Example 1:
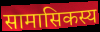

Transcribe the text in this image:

सामासिकस्य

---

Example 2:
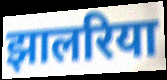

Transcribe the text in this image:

झालरिया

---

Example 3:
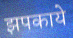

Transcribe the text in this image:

झपकाये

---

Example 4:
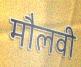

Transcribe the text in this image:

मौलवी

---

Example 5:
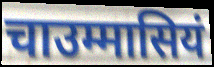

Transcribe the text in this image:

चाउम्मासियं